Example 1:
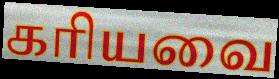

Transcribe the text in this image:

கரியவை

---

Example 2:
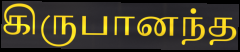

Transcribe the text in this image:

கிருபானந்த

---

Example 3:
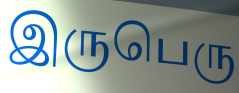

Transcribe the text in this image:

இருபெரு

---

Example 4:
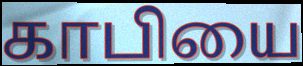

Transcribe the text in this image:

காபியை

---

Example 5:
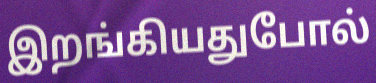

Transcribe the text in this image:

இறங்கியதுபோல்